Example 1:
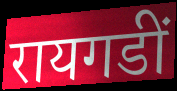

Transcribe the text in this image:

रायगडीं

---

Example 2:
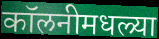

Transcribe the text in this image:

कॉलनीमधल्या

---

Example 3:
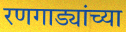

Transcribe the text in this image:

रणगाड्यांच्या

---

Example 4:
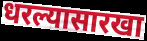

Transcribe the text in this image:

धरल्यासारखा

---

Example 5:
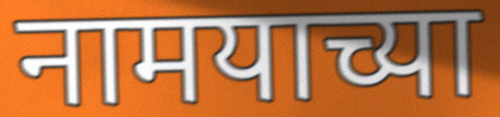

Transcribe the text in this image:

नामयाच्या